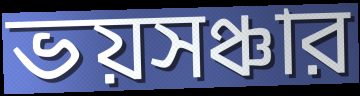
ভয়সঞ্চার